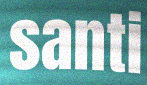
santi